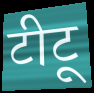
टीटू